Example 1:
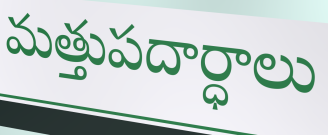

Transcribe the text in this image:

మత్తుపదార్ధాలు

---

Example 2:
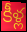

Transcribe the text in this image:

కీళ్ల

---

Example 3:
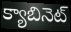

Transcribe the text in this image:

క్యాబినెట్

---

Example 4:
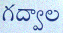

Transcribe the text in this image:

గద్వాల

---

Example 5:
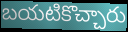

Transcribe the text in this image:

బయటికొచ్చారు